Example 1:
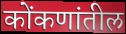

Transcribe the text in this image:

कोंकणांतील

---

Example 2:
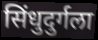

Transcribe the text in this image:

सिंधुदुर्गला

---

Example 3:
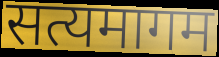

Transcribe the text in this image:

सत्यमागम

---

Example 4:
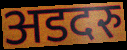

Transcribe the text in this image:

अडदरु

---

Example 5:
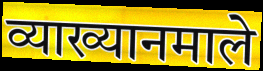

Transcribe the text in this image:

व्याख्यानमाले